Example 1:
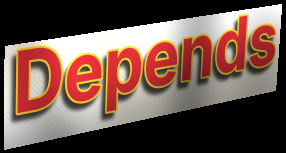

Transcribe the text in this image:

Depends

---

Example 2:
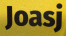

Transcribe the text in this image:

Joasj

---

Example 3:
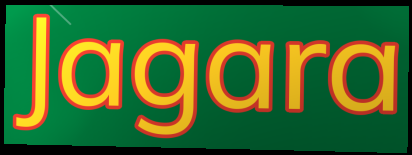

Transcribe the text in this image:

Jagara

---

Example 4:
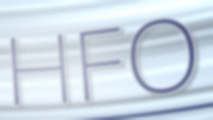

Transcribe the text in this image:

HFO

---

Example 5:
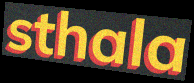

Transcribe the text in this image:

sthala